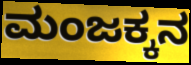
ಮಂಜಕ್ಕನ